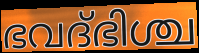
ഭവദ്ഭിശ്ച